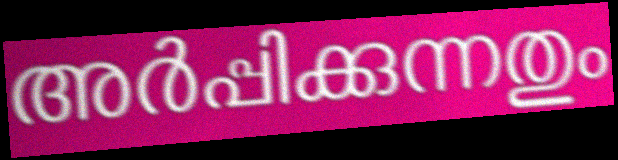
അർപ്പിക്കുന്നതും